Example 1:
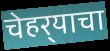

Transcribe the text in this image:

चेहर्‍याचा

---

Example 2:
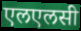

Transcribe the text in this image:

एलएलसी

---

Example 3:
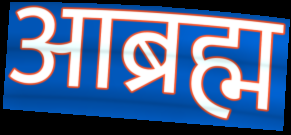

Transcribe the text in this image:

आब्रह्म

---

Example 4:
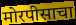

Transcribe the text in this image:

मोरपीसाचा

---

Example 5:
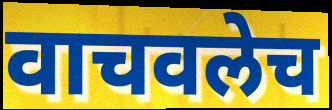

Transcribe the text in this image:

वाचवलेच